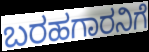
ಬರಹಗಾರನಿಗೆ